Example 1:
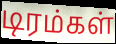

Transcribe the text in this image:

டிரம்கள்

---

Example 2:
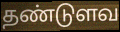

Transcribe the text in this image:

தண்டுளவ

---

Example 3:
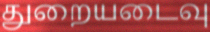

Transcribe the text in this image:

துறையடைவு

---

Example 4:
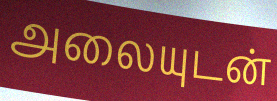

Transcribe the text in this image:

அலையுடன்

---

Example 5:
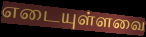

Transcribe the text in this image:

எடையுள்ளவை